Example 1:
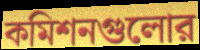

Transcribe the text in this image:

কমিশনগুলোর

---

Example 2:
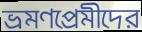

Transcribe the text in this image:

ভ্রমণপ্রেমীদের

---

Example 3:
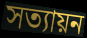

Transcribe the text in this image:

সত্যায়ন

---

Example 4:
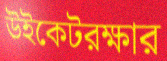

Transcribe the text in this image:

উইকেটরক্ষার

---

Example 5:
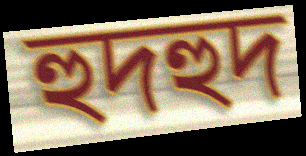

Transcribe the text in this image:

হুদহুদ